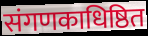
संगणकाधिष्ठित